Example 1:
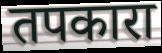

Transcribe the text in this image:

तपकारा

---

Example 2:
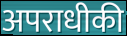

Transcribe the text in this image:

अपराधीकी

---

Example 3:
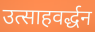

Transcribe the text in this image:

उत्साहवर्द्धन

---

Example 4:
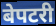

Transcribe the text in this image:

बेपटरी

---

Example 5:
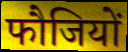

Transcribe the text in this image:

फौजियों